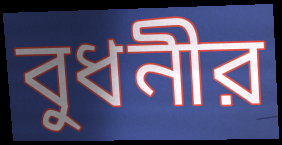
বুধনীর